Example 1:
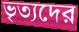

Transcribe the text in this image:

ভৃত্যদের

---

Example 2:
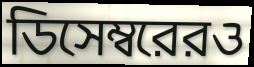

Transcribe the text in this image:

ডিসেম্বরেরও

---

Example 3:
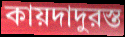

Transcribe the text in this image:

কায়দাদুরস্ত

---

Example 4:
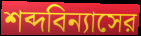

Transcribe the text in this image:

শব্দবিন্যাসের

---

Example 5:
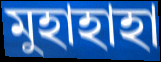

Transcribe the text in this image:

মুহাহাহা